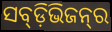
ସବ୍‍ଡ଼ିଭିଜନ୍‍ର